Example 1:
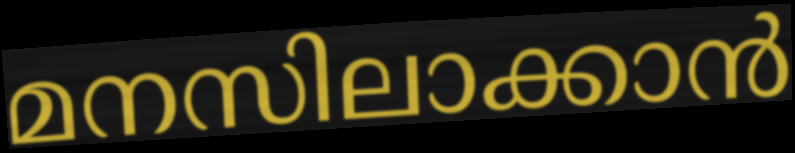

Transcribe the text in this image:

മനസിലാക്കാൻ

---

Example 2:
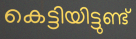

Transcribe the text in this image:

കെട്ടിയിട്ടുണ്ട്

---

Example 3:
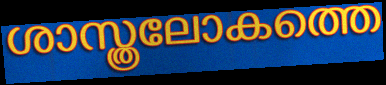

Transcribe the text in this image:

ശാസ്ത്രലോകത്തെ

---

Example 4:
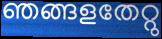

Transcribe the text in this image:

ഞങ്ങളതേറ്റു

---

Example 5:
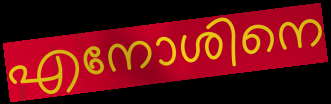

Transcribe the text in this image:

എനോശിനെ